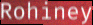
Rohiney